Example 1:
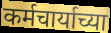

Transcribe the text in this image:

कर्मचार्याच्या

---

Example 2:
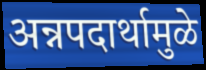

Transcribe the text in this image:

अन्नपदार्थामुळे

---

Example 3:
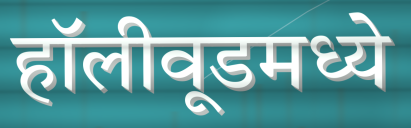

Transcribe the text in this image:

हॉलीवूडमध्ये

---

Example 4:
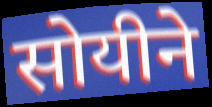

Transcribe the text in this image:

सोयीने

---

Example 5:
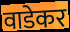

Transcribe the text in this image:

वाडेकर